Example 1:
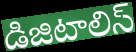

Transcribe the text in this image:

డిజిటాలిస్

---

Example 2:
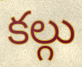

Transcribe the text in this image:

కల్గు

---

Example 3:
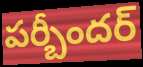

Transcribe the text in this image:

పర్బీందర్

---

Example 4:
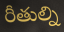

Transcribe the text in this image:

రీతుల్ని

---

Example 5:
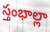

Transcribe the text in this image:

స్తంభాల్లా